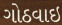
ગોઠવાઇ